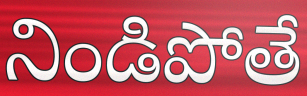
నిండిపోతే